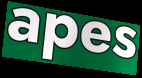
apes